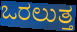
ಒರಲುತ್ತ